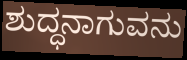
ಶುದ್ಧನಾಗುವನು